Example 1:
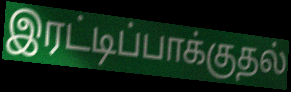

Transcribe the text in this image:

இரட்டிப்பாக்குதல்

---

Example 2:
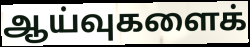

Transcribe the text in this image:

ஆய்வுகளைக்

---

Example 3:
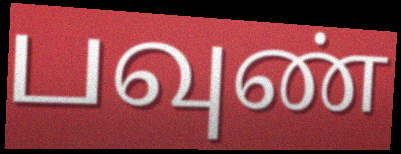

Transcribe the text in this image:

பவுண்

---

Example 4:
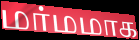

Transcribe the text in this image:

மர்மமாக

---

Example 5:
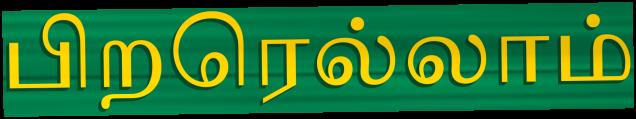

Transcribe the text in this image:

பிறரெல்லாம்